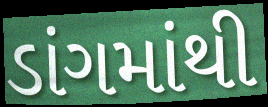
ડાંગમાંથી